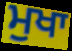
ਮੁਖਾ